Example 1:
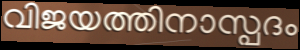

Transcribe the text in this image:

വിജയത്തിനാസ്പദം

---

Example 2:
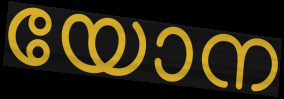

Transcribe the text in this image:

യോന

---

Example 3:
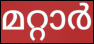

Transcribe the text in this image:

മറ്റാർ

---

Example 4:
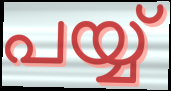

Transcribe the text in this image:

പയ്യ്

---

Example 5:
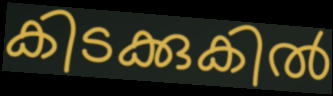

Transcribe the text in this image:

കിടക്കുകിൽ